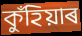
কুঁহিয়াৰ